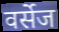
वर्सेज